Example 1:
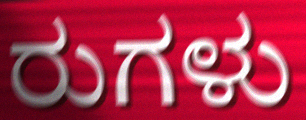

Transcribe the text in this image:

ರುಗಳು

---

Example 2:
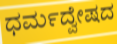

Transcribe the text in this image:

ಧರ್ಮದ್ವೇಷದ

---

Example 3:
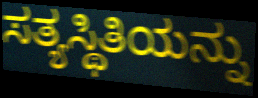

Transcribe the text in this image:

ಸತ್ಯಸ್ಥಿತಿಯನ್ನು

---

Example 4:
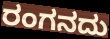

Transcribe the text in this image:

ರಂಗನದು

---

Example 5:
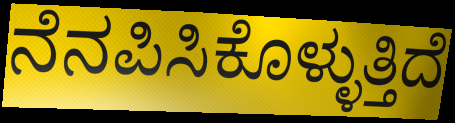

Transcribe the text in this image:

ನೆನಪಿಸಿಕೊಳ್ಳುತ್ತಿದೆ